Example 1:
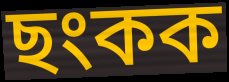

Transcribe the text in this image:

ছংকক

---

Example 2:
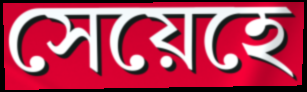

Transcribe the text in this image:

সেয়েহে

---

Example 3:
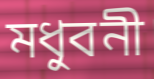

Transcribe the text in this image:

মধুবনী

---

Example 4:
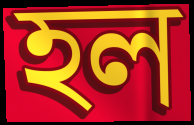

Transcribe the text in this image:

হল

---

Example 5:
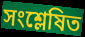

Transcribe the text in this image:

সংশ্লেষিত